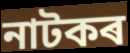
নাটকৰ